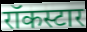
रॉकस्टार